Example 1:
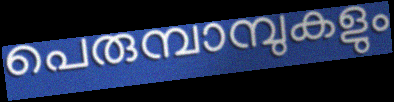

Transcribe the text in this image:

പെരുമ്പാമ്പുകളും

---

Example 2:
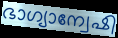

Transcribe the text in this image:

ഭാഗ്യാന്വേഷി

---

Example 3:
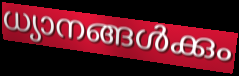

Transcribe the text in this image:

ധ്യാനങ്ങൾക്കും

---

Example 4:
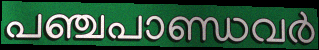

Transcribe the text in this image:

പഞ്ചപാണ്ഡവർ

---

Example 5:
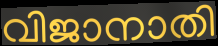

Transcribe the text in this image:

വിജാനാതി